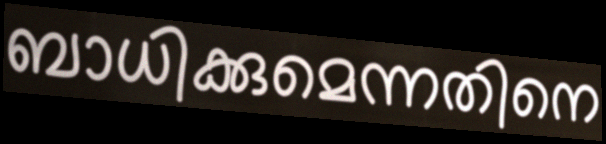
ബാധിക്കുമെന്നതിനെ